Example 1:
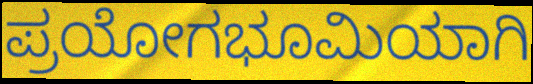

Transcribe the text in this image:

ಪ್ರಯೋಗಭೂಮಿಯಾಗಿ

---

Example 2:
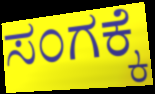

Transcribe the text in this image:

ಸಂಗಕ್ಕೆ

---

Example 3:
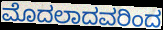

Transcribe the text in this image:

ಮೊದಲಾದವರಿಂದ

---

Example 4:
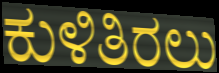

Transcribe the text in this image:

ಕುಳಿತಿರಲು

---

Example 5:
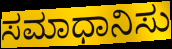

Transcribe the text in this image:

ಸಮಾಧಾನಿಸು